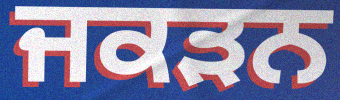
ਜਕੜਨ